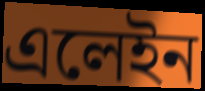
এলেইন